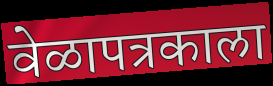
वेळापत्रकाला